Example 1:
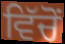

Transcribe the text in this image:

ਵਿੱਚੋੰ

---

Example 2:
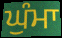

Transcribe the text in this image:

ਘੁੰਮਾ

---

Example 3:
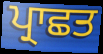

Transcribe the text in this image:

ਪ੍ਰਾਛਤ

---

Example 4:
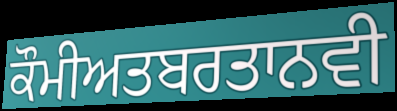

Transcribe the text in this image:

ਕੌਮੀਅਤਬਰਤਾਨਵੀ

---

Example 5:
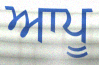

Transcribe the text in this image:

ਆਪੂ